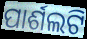
ପାର୍ଶଲଟି